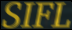
SIFL